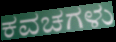
ಕವಚಗಳು